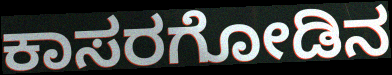
ಕಾಸರಗೋಡಿನ